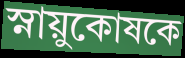
স্নায়ুকোষকে